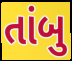
તાંબુ